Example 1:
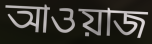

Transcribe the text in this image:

আওয়াজ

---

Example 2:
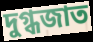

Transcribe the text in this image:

দুগ্ধজাত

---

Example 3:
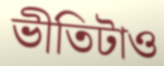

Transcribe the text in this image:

ভীতিটাও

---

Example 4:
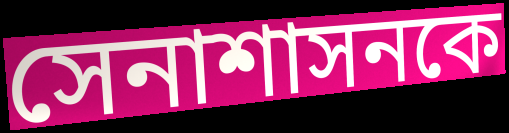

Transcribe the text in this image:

সেনাশাসনকে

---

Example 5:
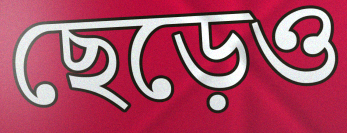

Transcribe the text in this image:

ছেড়েও